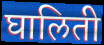
घालिती